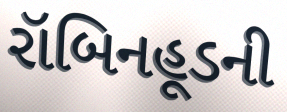
રૉબિનહૂડની